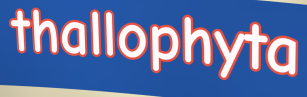
thallophyta